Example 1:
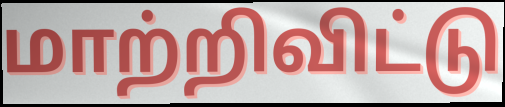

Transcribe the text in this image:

மாற்றிவிட்டு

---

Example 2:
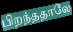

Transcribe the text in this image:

பிறந்ததாலே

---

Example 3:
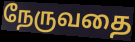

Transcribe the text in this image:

நேருவதை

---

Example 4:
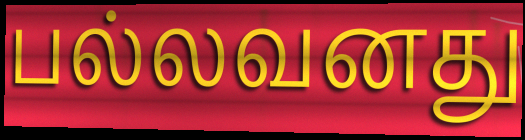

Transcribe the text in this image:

பல்லவனது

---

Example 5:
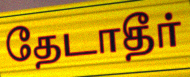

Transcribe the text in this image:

தேடாதீர்